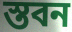
স্তবন